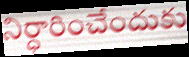
నిర్ధారించేందుకు